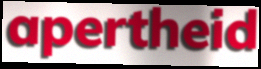
apertheid